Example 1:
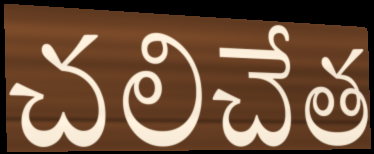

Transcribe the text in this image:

చలిచేత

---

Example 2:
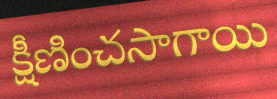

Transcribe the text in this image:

క్షీణించసాగాయి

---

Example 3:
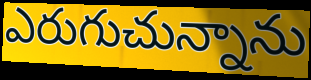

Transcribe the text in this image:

ఎరుగుచున్నాను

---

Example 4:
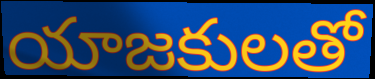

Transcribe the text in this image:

యాజకులతో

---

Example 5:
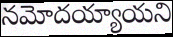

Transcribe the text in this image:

నమోదయ్యాయని